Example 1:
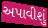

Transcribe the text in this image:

અપાવીશું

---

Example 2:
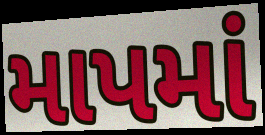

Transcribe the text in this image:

માપમાં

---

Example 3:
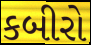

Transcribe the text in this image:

કબીરો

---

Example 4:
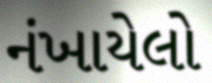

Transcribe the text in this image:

નંખાયેલો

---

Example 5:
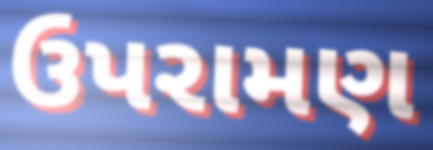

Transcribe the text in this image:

ઉપરામણ